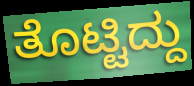
ತೊಟ್ಟಿದ್ದು